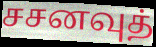
சசனவுத்